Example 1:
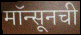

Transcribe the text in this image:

मॉन्सूनची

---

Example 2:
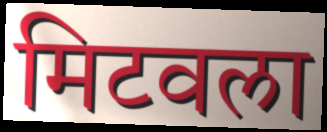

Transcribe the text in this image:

मिटवला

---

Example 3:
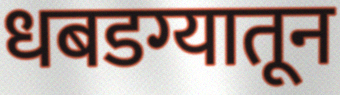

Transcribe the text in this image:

धबडग्यातून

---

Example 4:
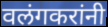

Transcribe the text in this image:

वलंगकरांनी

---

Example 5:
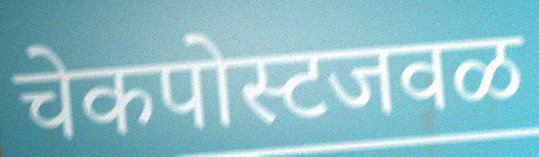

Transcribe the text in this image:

चेकपोस्टजवळ